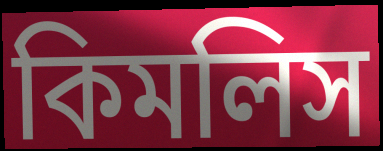
কিমলিস